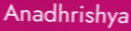
Anadhrishya